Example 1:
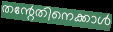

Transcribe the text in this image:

തന്റേതിനെക്കാൾ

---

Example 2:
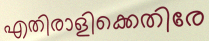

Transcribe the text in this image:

എതിരാളിക്കെതിരേ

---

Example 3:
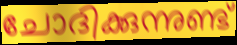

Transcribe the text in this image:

ചോദിക്കുന്നുണ്ട്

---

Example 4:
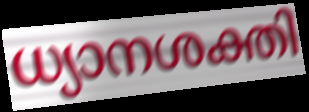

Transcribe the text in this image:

ധ്യാനശക്തി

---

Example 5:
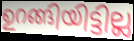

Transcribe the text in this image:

ഉറങ്ങിയിട്ടില്ല